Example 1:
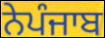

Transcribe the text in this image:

ਨੇਪੰਜਾਬ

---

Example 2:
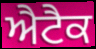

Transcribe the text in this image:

ਐਟੈਕ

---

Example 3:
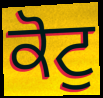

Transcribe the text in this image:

ਕੋਟੁ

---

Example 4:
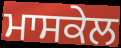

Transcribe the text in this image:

ਮਾਸਕੇਲ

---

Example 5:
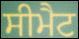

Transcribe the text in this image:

ਸੀਮੈਟ